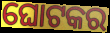
ଘୋଟକର